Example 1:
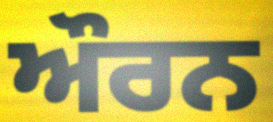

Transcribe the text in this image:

ਔਰਨ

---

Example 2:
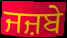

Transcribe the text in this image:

ਜਜ਼ਬੇ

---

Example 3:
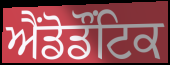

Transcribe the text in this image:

ਐਂਡੋਡੌਂਟਿਕ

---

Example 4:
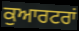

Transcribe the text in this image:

ਕੁਆਰਟਰਾਂ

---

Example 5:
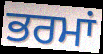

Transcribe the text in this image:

ਭਰਮਾਂ